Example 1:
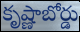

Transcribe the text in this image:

కృష్ణాబోర్డు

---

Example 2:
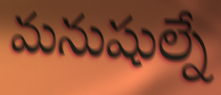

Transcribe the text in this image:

మనుషుల్నే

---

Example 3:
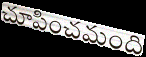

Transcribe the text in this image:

చూపించమంది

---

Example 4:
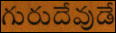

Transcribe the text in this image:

గురుదేవుడే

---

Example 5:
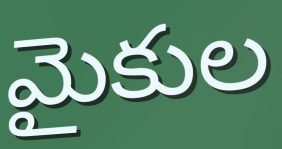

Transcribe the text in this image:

మైకుల